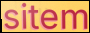
sitem